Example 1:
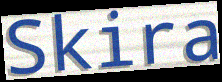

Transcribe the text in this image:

Skira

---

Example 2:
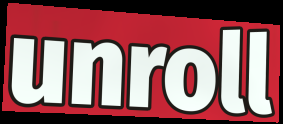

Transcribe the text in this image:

unroll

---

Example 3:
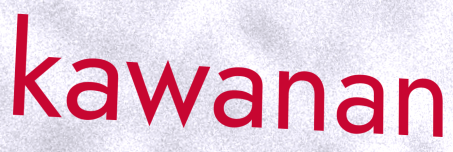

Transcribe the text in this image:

kawanan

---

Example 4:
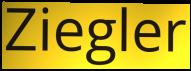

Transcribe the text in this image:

Ziegler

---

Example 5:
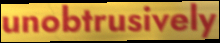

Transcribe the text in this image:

unobtrusively